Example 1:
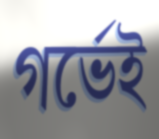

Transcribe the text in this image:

গর্ভেই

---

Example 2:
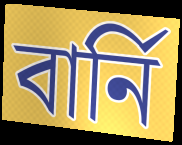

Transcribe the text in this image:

বার্নি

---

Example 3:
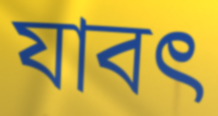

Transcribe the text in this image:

যাবৎ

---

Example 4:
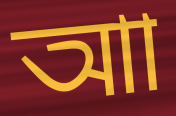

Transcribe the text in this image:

আা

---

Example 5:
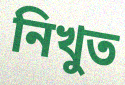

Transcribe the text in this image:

নিখুত